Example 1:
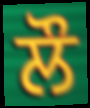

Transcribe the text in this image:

ਲੌ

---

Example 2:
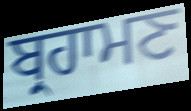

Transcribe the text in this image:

ਬ੍ਰਹਾਮਣ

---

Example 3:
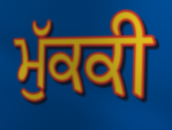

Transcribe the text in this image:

ਮੁੱਕਕੀ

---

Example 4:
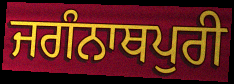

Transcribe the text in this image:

ਜਗੰਨਾਥਪੁਰੀ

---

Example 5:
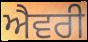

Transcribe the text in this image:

ਐਵਰੀ